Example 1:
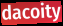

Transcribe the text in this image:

dacoity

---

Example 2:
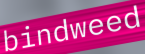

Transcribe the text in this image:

bindweed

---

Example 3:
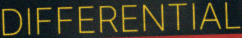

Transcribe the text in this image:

DIFFERENTIAL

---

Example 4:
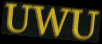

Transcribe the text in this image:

UWU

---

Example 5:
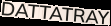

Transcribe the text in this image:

DATTATRAY